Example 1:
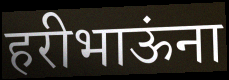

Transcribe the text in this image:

हरीभाऊंना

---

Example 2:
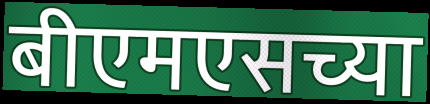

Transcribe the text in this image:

बीएमएसच्या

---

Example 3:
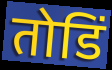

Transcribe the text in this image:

तोडिं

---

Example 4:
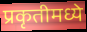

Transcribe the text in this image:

प्रकृतीमध्ये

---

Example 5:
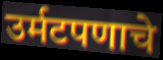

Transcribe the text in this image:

उर्मटपणाचे